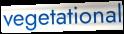
vegetational